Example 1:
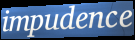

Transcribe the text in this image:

impudence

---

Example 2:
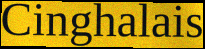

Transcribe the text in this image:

Cinghalais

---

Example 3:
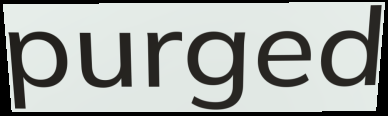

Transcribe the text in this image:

purged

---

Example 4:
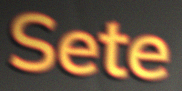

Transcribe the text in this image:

Sete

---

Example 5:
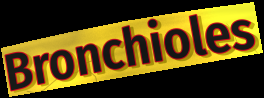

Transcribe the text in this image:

Bronchioles